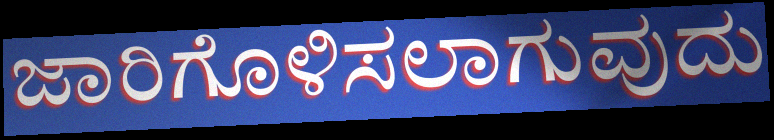
ಜಾರಿಗೊಳಿಸಲಾಗುವುದು